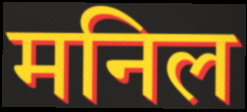
मनिल